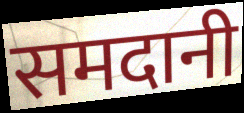
समदानी